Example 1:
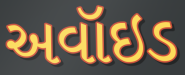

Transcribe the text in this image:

અવૉઇડ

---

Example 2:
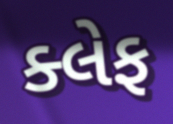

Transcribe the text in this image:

ક્લેફ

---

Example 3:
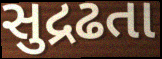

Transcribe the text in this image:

સુદ્રઢતા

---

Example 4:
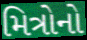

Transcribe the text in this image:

મિત્રોનો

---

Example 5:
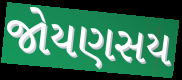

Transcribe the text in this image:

જોયણસય